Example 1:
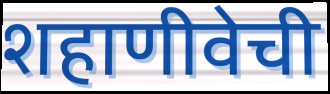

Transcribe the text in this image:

शहाणीवेची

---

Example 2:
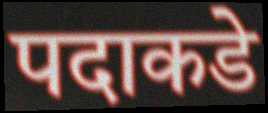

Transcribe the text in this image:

पदाकडे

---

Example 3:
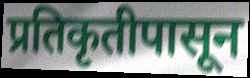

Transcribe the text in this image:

प्रतिकृतीपासून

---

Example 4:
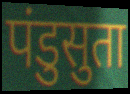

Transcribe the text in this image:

पंडुसुता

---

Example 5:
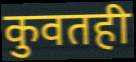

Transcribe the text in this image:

कुवतही